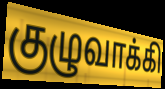
குழுவாக்கி